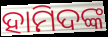
ହାମିଦଙ୍କ